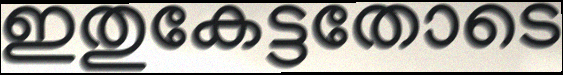
ഇതുകേട്ടതോടെ